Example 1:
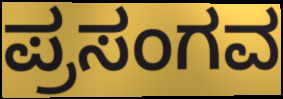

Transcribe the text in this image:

ಪ್ರಸಂಗವ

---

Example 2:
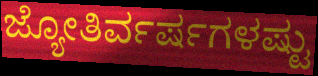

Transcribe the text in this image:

ಜ್ಯೋತಿರ್ವರ್ಷಗಳಷ್ಟು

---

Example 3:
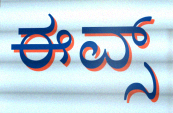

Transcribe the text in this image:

ಈವ್ಸ್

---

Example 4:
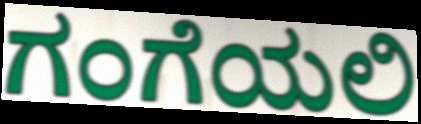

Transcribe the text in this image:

ಗಂಗೆಯಲಿ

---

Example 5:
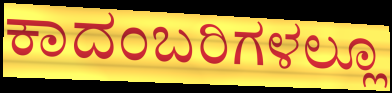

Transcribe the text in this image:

ಕಾದಂಬರಿಗಳಲ್ಲೂ